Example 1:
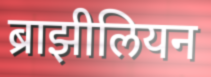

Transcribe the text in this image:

ब्राझीलियन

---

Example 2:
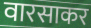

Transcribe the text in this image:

वारसाकर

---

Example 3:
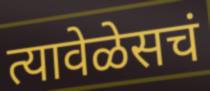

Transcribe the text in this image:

त्यावेळेसचं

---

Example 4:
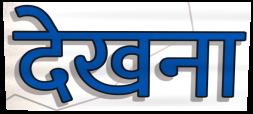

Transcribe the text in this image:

देखना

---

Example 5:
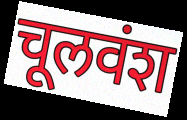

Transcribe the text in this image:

चूलवंश